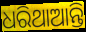
ଧରିଥାଆନ୍ତି